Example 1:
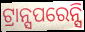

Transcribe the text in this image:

ଟ୍ରାନ୍ସପରେନ୍ସି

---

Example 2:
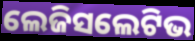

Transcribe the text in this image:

ଲେଜିସଲେଟିଭ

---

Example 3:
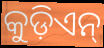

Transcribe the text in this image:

କୁଡ଼ିଏନ୍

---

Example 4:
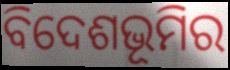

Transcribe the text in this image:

ବିଦେଶଭୂମିର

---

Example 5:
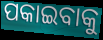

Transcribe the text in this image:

ପକାଇବାକୁ